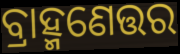
ବ୍ରାହ୍ମଣେତ୍ତର